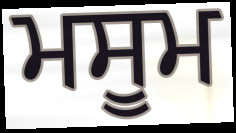
ਮਸੂਮ